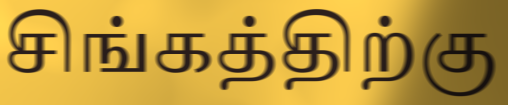
சிங்கத்திற்கு